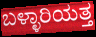
ಬಳ್ಳಾರಿಯತ್ತ